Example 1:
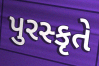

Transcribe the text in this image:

પુરસ્કૃતે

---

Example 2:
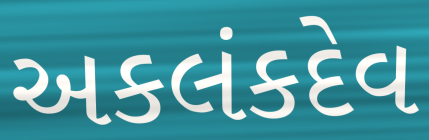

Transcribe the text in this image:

અકલંકદેવ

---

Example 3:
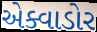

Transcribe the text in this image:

એક્વાડોર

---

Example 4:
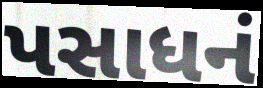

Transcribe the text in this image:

પસાધનં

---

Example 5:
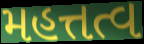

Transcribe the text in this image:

મહત્તત્વ